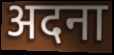
अदना